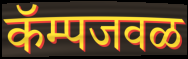
कॅम्पजवळ